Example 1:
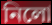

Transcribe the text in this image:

নিলো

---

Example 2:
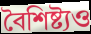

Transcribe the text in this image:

বৈশিষ্ট্যও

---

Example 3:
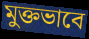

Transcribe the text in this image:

মুক্তভাবে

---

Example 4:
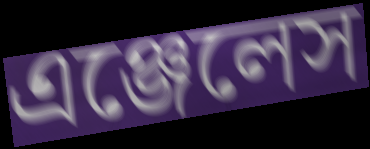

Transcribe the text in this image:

এঞ্জেলেস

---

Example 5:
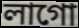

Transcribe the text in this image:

লাগো